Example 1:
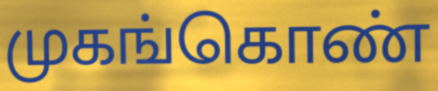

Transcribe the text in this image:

முகங்கொண்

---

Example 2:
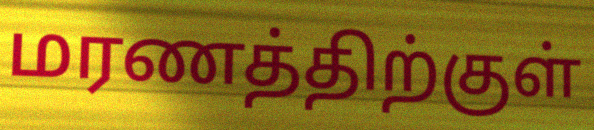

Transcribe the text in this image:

மரணத்திற்குள்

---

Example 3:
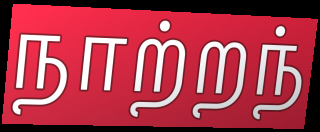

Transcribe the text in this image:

நாற்றந்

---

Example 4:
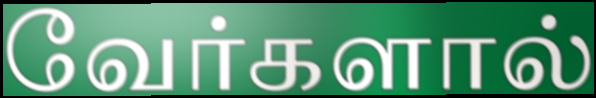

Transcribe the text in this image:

வேர்களால்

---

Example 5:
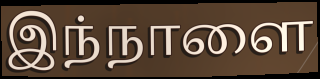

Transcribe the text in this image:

இந்நாளை